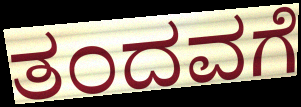
ತಂದವಗೆ